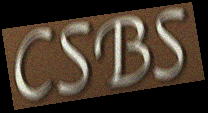
CSBS